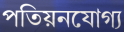
পতিয়নযোগ্য